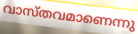
വാസ്തവമാണെന്നു